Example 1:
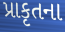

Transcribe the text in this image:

પ્રાકૃતના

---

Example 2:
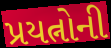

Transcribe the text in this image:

પ્રયત્નોની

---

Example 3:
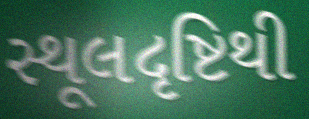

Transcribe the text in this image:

સ્થૂલદૃષ્ટિથી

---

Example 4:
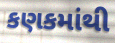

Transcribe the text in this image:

કણકમાંથી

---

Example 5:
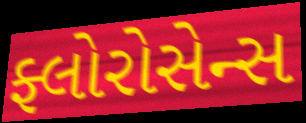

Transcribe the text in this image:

ફ્લોરોસેન્સ